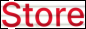
Store